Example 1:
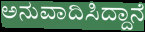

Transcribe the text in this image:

ಅನುವಾದಿಸಿದ್ದಾನೆ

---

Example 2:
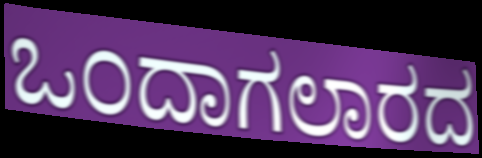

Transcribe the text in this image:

ಒಂದಾಗಲಾರದ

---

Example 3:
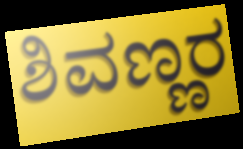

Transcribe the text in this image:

ಶಿವಣ್ಣರ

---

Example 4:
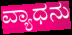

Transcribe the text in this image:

ವ್ಯಾಧನು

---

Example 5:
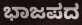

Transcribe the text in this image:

ಭಾಜಪದ